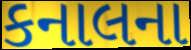
કનાલના